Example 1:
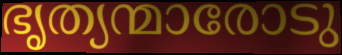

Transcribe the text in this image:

ഭൃത്യന്മാരോടു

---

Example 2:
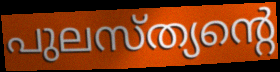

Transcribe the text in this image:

പുലസ്ത്യന്റെ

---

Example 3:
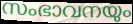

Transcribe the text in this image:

സംഭാവനയും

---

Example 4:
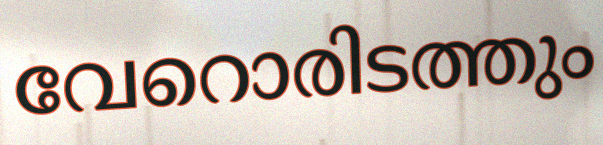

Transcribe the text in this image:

വേറൊരിടത്തും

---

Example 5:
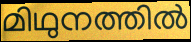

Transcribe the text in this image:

മിഥുനത്തിൽ